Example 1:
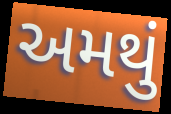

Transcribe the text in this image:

અમથું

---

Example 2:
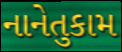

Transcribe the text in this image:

નાનેતુકામ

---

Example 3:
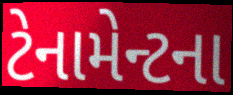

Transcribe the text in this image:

ટેનામેન્ટના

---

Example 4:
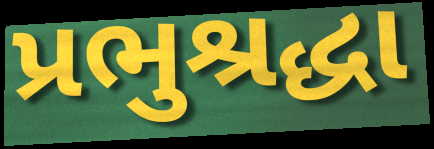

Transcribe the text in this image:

પ્રભુશ્રદ્ધા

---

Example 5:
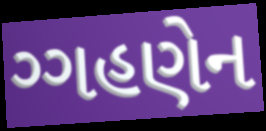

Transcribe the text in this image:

ગ્ગહણેન